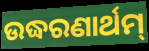
ଉଦ୍ଧରଣାର୍ଥମ୍